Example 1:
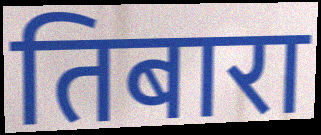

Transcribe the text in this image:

तिबारा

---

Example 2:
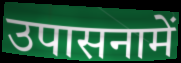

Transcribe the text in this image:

उपासनामें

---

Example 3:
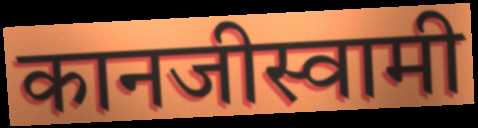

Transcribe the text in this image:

कानजीस्वामी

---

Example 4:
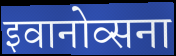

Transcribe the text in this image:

इवानोव्सना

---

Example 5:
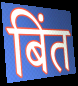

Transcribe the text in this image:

बिंत